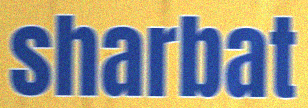
sharbat